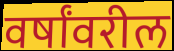
वर्षांवरील